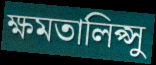
ক্ষমতালিপ্সু